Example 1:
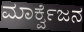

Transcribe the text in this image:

ಮಾರ್ಕ್ವೆಜನ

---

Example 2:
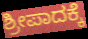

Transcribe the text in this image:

ಶ್ರೀಪಾದಕ್ಕೆ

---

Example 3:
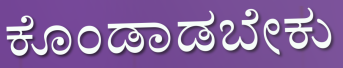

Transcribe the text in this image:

ಕೊಂಡಾಡಬೇಕು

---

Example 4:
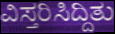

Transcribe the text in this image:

ವಿಸ್ತರಿಸಿದ್ದಿತು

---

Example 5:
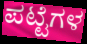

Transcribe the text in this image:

ಪಟ್ಟೆಗಳ